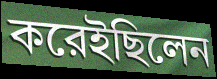
করেইছিলেন